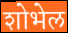
शोभेल